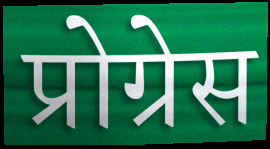
प्रोग्रेस